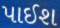
પાઈશ